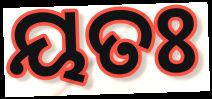
ୟତଃ